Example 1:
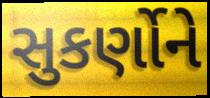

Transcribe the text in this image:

સુકર્ણોને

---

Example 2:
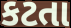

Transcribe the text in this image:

કટતા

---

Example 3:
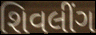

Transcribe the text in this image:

શિવલીંગ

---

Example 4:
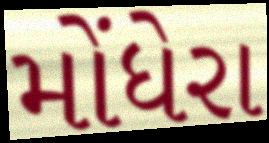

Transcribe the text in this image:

મોંધેરા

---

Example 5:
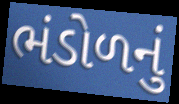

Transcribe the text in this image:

ભંડોળનું